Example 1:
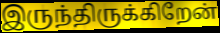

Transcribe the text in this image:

இருந்திருக்கிறேன்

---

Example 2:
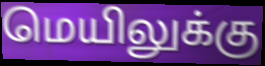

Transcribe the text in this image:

மெயிலுக்கு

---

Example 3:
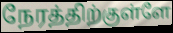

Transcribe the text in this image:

நேரத்திற்குள்ளே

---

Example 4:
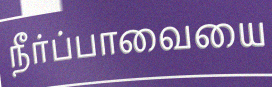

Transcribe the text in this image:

நீர்ப்பாவையை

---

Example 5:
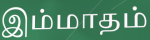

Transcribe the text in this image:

இம்மாதம்